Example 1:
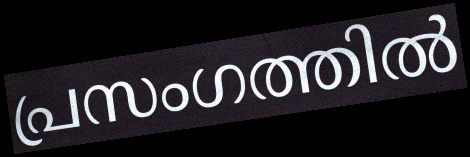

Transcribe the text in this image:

പ്രസംഗത്തിൽ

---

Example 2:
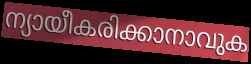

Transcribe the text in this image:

ന്യായീകരിക്കാനാവുക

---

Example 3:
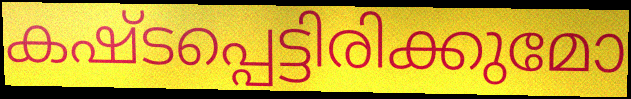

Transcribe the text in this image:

കഷ്ടപ്പെട്ടിരിക്കുമോ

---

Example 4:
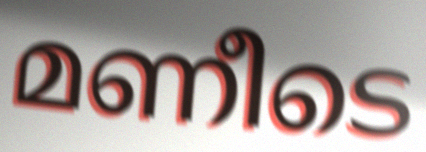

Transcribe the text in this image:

മണീടെ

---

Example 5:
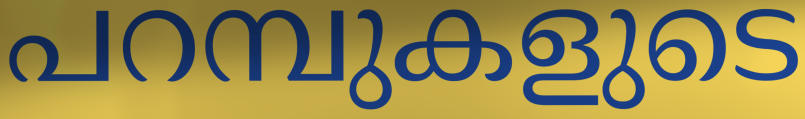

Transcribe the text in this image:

പറമ്പുകളുടെ